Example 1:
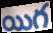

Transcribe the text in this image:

యిగ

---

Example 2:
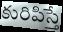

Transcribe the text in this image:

కురిపిస్తే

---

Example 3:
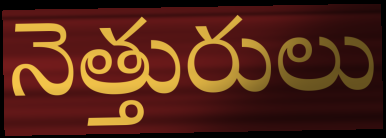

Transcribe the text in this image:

నెత్తురులు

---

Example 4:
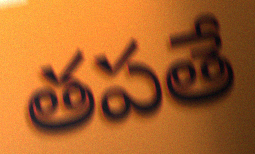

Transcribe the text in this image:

తపతే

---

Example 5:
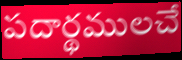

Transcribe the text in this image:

పదార్థములచే